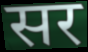
सर